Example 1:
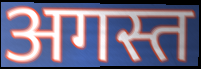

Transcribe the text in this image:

अगस्‍त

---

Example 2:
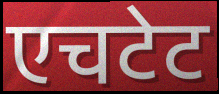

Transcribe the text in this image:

एचटेट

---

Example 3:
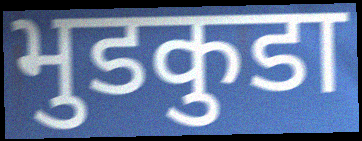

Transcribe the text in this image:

भुडकुडा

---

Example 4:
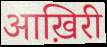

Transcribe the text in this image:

आख़िरी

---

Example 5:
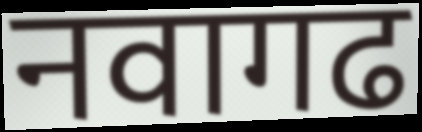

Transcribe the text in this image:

नवागढ